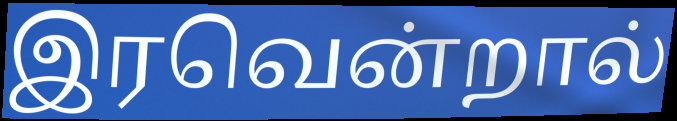
இரவென்றால்